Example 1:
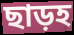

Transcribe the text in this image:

ছাড়হ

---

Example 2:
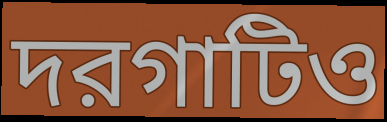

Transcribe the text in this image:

দরগাটিও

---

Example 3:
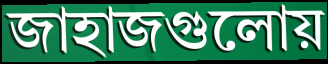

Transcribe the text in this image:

জাহাজগুলোয়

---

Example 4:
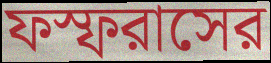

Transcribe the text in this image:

ফস্ফরাসের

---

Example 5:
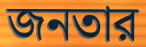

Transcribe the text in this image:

জনতার